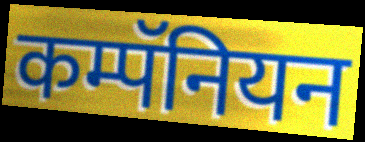
कम्पॅनियन